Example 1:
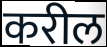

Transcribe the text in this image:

करील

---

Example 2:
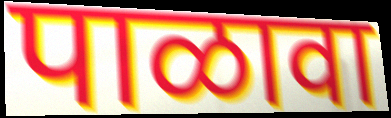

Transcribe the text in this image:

पाळावा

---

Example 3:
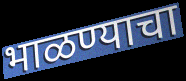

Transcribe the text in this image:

भाळण्याचा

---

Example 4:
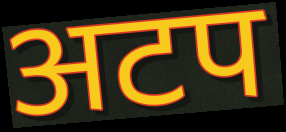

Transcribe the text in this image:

अटप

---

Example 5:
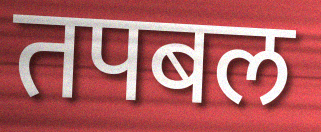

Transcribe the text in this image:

तपबल